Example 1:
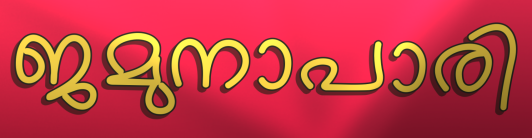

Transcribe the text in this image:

ജമുനാപാരി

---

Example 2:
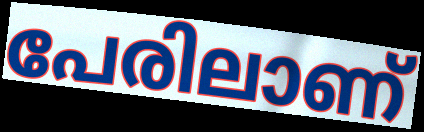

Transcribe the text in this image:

പേരിലാണ്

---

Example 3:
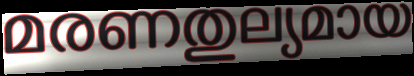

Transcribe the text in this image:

മരണതുല്യമായ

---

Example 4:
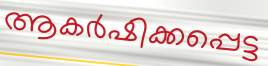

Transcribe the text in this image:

ആകർഷിക്കപ്പെട്ട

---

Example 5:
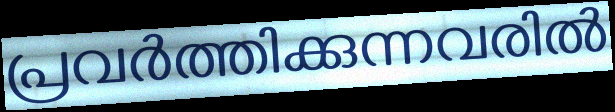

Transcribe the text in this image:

പ്രവർത്തിക്കുന്നവരിൽ